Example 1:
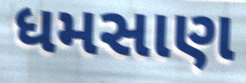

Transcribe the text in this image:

ધમસાણ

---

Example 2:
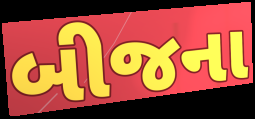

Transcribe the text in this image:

બીજના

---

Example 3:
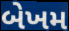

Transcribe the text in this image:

બેખમ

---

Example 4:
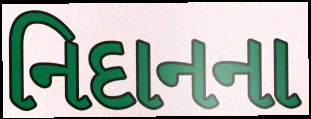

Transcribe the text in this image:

નિદાનના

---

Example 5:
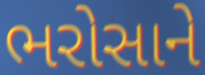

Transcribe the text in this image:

ભરોસાને